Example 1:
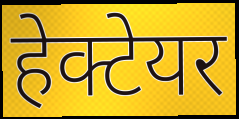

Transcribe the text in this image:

हेक्टेयर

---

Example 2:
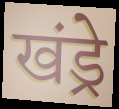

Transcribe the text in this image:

खंड्रे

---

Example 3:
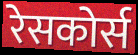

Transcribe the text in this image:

रेसकोर्स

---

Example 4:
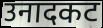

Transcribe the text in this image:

उनादकट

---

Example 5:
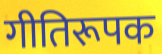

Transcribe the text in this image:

गीतिरूपक